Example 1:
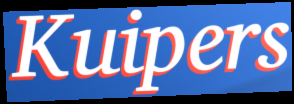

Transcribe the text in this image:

Kuipers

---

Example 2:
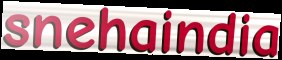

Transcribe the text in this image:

snehaindia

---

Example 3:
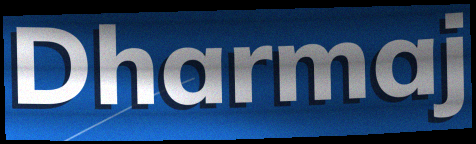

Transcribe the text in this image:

Dharmaj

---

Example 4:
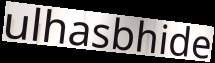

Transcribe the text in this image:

ulhasbhide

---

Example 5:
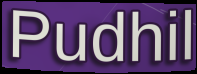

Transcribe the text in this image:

Pudhil